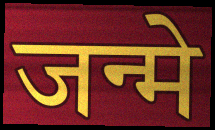
जन्मे